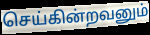
செய்கின்றவனும்